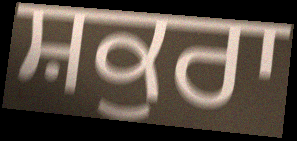
ਸ਼ਕੁਰਾ